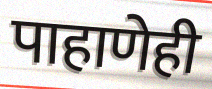
पाहाणेही